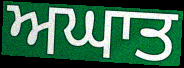
ਅਘਾਤ